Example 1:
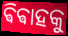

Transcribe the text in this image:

ଵିଵାହକୁ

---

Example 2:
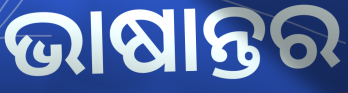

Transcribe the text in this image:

ଭାଷାନ୍ତର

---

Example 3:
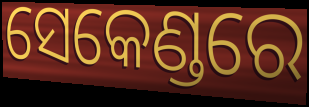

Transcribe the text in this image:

ସେକେଣ୍ଡରେ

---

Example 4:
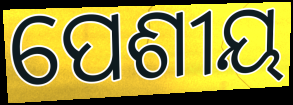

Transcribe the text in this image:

ପେଶୀୟ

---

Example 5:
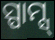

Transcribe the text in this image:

ସ୍ପାମ୍ସ୍